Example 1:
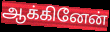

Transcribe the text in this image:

ஆக்கினேன்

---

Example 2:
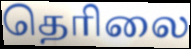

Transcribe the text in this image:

தெரிலை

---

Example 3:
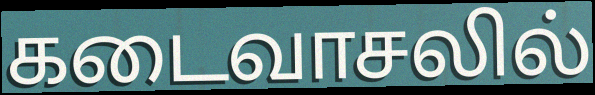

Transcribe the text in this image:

கடைவாசலில்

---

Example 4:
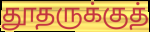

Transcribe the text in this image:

தூதருக்குத்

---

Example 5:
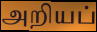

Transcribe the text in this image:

அறியப்